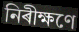
নিৰীক্ষণে